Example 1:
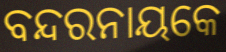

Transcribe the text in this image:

ବନ୍ଦରନାୟକେ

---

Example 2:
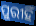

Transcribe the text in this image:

ପୁରୀହିଁ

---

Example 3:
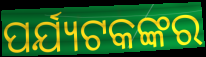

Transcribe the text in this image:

ପର୍ଯ୍ୟଟକଙ୍କର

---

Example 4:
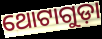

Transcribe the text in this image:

ଥୋଟାଗୁଡ଼ା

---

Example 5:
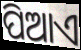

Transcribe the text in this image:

ପିଆଏ